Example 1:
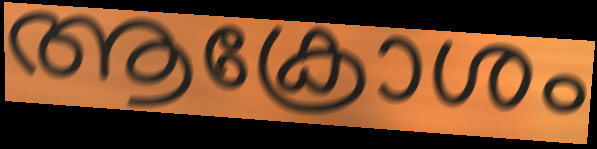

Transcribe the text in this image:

ആക്രോശം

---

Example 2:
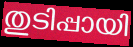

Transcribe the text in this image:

തുടിപ്പായി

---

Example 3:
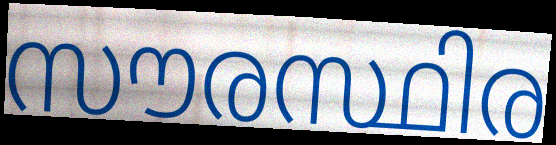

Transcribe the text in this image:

സൗരസ്ഥിര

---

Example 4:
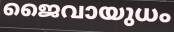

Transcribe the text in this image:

ജൈവായുധം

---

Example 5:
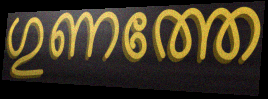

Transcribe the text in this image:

ഗുണത്തേ